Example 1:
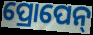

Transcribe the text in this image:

ପ୍ରୋପେନ୍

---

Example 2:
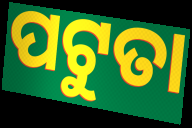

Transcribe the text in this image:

ପଟୁତା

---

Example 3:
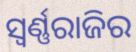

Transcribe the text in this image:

ସ୍ଵର୍ଣ୍ଣରାଜିର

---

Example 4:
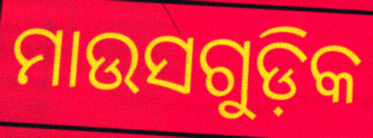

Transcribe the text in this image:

ମାଉସଗୁଡ଼ିକ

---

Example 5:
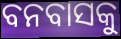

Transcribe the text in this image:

ବନବାସକୁ